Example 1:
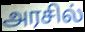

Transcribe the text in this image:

அரசில்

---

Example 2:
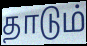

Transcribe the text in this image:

தாடும்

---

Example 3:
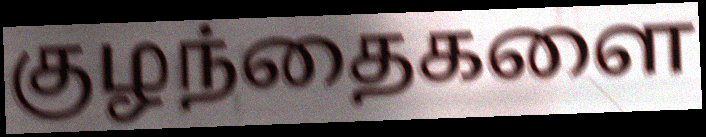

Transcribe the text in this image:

குழந்தைகளை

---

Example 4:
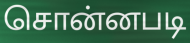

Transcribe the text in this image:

சொன்னபடி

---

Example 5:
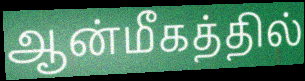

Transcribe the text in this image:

ஆன்மீகத்தில்